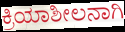
ಕ್ರಿಯಾಶೀಲನಾಗಿ